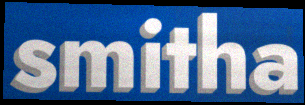
smitha